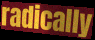
radically